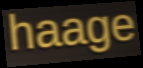
haage